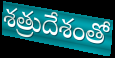
శత్రుదేశంతో